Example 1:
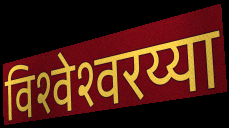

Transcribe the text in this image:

विश्वेश्वरय्या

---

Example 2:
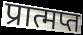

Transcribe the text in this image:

प्रात्मप्त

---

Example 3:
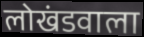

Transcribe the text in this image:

लोखंडवाला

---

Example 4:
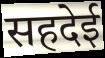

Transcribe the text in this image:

सहदेई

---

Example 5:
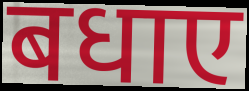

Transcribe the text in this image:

बधाए